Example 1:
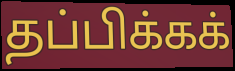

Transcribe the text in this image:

தப்பிக்கக்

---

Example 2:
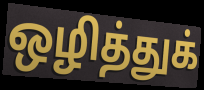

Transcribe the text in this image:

ஒழித்துக்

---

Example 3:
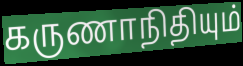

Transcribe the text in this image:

கருணாநிதியும்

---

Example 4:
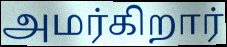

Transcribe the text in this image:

அமர்கிறார்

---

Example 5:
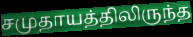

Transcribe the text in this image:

சமுதாயத்திலிருந்த